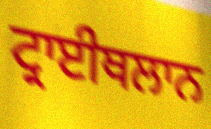
ਟ੍ਰਾਈਥਲਾਨ